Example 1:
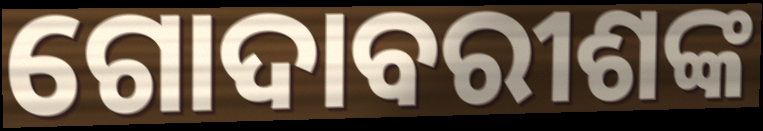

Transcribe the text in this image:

ଗୋଦାବରୀଶଙ୍କ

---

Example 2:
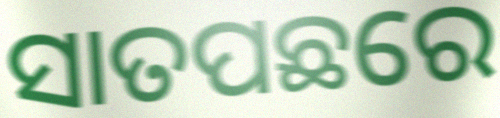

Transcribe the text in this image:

ସାତପଛରେ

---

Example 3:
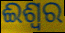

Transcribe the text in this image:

ଈଶ୍ବର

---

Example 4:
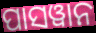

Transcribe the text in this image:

ପାସୱାନ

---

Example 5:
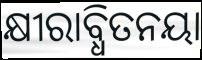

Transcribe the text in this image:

କ୍ଷୀରାବ୍ଧିତନୟା